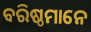
ବରିଷ୍ଠମାନେ